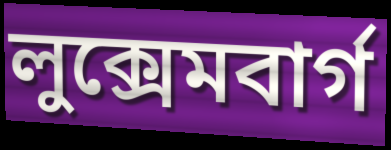
লুক্সেমবার্গ